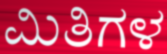
ಮಿತಿಗಳ